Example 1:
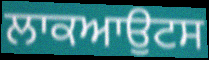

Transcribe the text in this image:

ਲਾਕਆਉਟਸ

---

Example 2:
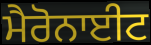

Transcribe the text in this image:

ਮੈਰੋਨਾਈਟ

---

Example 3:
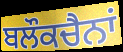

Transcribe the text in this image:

ਬਲੌਕਚੈਨਾਂ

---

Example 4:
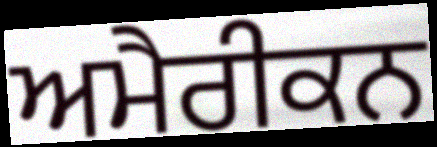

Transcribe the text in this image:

ਅਮੈਰੀਕਨ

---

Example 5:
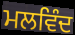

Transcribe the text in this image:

ਮਲਵਿੰਦ